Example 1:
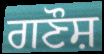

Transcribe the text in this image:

ਗਣੌਸ਼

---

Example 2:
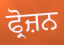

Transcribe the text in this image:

ਫ੍ਰੋਜ਼ਨ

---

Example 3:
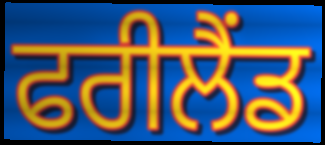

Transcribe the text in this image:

ਫਰੀਲੈਂਡ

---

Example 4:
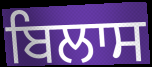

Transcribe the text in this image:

ਬਿਲਾਸ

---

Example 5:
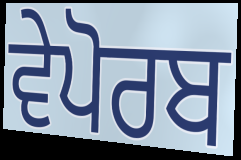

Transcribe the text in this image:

ਵੇਪੋਰਬ